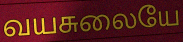
வயசுலையே